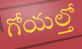
గోయల్తో